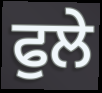
ਫੁਲੇ